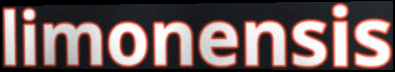
limonensis